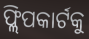
ଫ୍ଲିପକାର୍ଟକୁ